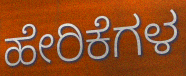
ಹೇರಿಕೆಗಳ